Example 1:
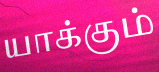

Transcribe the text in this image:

யாக்கும்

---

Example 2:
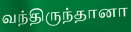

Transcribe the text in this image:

வந்திருந்தானா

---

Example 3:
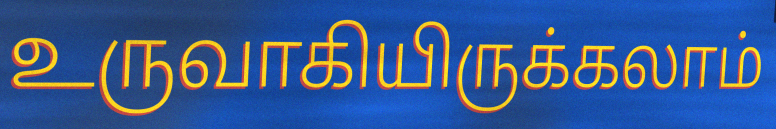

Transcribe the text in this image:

உருவாகியிருக்கலாம்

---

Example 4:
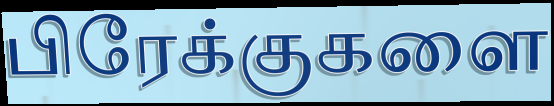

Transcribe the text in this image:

பிரேக்குகளை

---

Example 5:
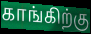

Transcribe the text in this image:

காங்கிற்கு